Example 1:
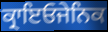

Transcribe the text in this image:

ਕ੍ਰਾਇਓਜੇਨਿਕ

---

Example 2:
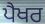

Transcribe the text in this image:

ਪੈਖਰ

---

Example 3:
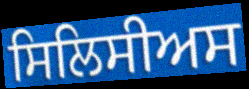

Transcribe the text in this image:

ਸਿਲਿਸੀਅਸ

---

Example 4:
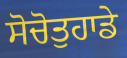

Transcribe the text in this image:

ਸੋਚੋਤੁਹਾਡੇ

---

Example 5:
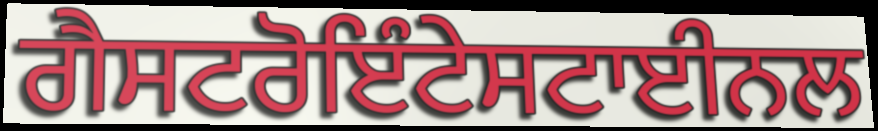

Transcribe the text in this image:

ਗੈਸਟਰੋਇੰਟੇਸਟਾਈਨਲ